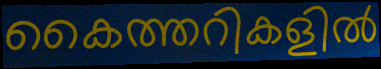
കൈത്തറികളിൽ